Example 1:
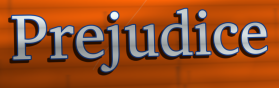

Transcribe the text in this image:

Prejudice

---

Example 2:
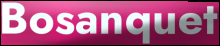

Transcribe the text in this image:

Bosanquet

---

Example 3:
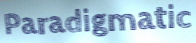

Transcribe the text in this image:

Paradigmatic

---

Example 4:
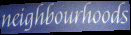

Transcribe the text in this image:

neighbourhoods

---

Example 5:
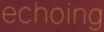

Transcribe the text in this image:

echoing